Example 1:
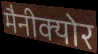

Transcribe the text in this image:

मैनीक्योर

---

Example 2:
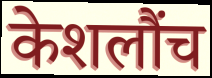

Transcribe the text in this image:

केशलौंच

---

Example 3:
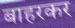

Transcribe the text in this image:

बाहरकर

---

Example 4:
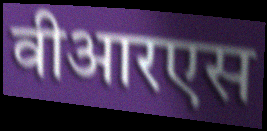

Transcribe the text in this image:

वीआरएस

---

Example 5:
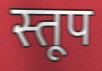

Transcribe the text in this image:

स्तूप